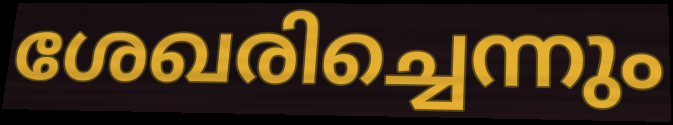
ശേഖരിച്ചെന്നും